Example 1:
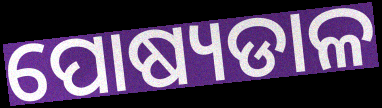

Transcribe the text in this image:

ପୋଷ୍ୟଡାଳ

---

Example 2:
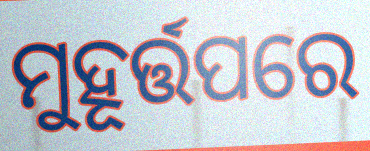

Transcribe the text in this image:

ମୁହୂର୍ତ୍ତପରେ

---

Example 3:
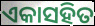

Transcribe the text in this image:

ଏକାସହିତ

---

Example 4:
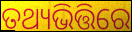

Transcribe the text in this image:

ତଥ୍ୟଭିତ୍ତିରେ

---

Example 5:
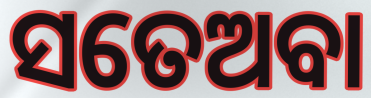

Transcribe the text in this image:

ସତେଅବା